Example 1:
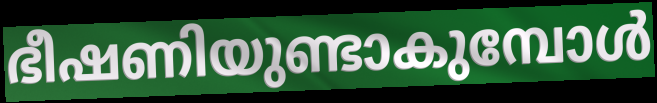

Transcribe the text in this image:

ഭീഷണിയുണ്ടാകുമ്പോൾ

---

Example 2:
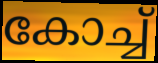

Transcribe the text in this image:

കോച്ച്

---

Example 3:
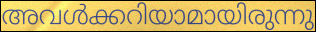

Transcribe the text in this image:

അവൾക്കറിയാമായിരുന്നു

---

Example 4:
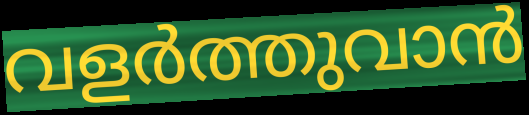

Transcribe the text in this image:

വളർത്തുവാൻ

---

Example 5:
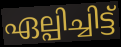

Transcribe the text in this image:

ഏല്പിച്ചിട്ട്